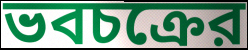
ভবচক্রের